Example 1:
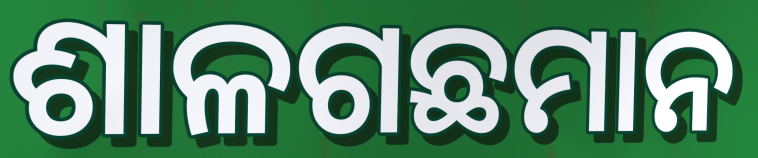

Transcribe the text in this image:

ଶାଳଗଛମାନ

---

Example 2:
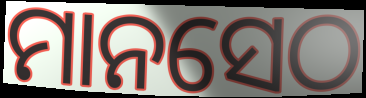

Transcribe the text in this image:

ମାନସେଠ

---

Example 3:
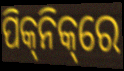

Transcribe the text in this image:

ପିକ୍‌ନିକ୍‌ରେ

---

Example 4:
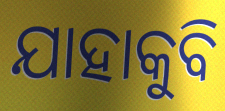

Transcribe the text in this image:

ଯାହାକୁବି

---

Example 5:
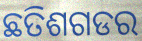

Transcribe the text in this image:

ଛତିଶଗଡର